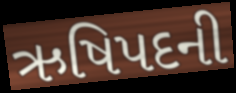
ઋષિપદની